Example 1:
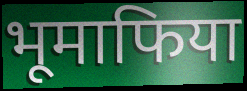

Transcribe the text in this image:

भूमाफिया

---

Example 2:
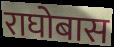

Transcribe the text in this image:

राघोबास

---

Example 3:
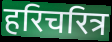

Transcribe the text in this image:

हरिचरित्र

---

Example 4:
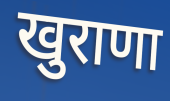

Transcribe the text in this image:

खुराणा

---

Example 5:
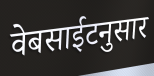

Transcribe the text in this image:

वेबसाईटनुसार